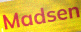
Madsen